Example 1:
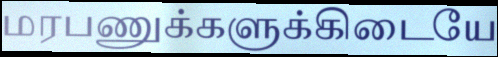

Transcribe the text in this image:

மரபணுக்களுக்கிடையே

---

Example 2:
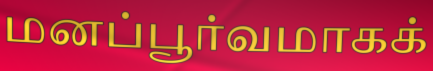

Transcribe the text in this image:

மனப்பூர்வமாகக்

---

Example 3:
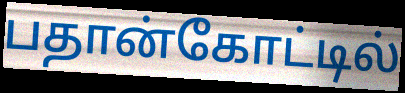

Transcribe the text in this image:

பதான்கோட்டில்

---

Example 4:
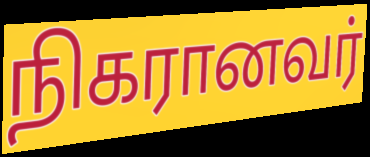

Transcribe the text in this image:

நிகரானவர்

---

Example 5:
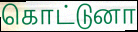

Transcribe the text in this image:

கொட்டுனா